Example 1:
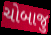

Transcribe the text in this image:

ચોબાજુ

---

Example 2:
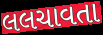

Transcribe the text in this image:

લલચાવતા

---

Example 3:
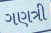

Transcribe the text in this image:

ગણત્રી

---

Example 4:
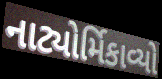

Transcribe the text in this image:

નાટ્યોર્મિકાવ્યો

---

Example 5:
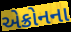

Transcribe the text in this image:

એક્રોનના